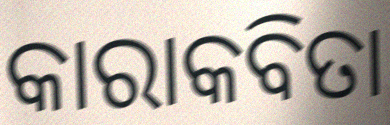
କାରାକବିତା